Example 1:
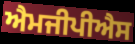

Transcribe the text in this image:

ਐਮਜੀਪੀਐਸ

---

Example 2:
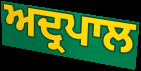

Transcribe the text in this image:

ਅਦ੍ਰਪਾਲ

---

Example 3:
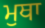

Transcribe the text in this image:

ਮੁਥਾ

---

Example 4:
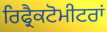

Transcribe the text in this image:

ਰਿਫ੍ਰੈਕਟੋਮੀਟਰਾਂ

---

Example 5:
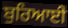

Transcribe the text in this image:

ਬੁਰਿਆਈ